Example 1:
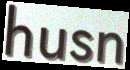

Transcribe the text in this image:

husn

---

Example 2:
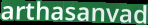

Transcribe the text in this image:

arthasanvad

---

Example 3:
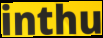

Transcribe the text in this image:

inthu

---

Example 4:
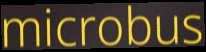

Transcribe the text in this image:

microbus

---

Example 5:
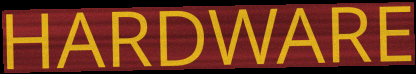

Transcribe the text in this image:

HARDWARE